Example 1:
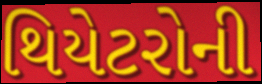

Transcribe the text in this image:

થિયેટરોની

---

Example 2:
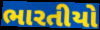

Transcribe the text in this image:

ભારતીયો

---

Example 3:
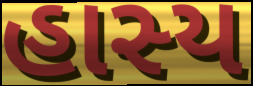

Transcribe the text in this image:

હાસ્ય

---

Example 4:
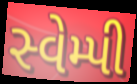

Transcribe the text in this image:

સ્વેમ્પી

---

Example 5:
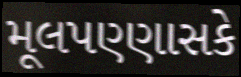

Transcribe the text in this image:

મૂલપણ્ણાસકે